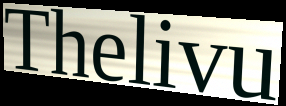
Thelivu